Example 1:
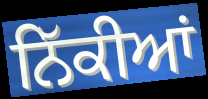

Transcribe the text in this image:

ਨਿੱਕੀਆਂ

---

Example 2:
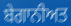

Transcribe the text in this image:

ਬੇਗਾਨੀਅਤ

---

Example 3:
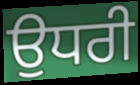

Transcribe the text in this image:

ਉਧਰੀ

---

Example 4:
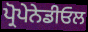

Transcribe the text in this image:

ਪ੍ਰੋਪੇਨੇਡੀਓਲ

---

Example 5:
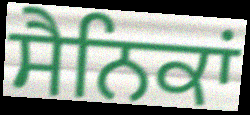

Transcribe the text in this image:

ਸੈਨਿਕਾਂ